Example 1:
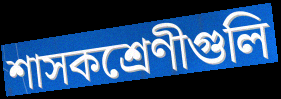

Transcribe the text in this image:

শাসকশ্রেণীগুলি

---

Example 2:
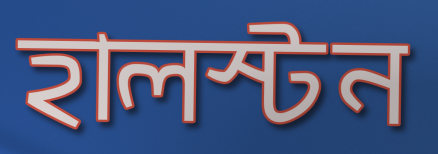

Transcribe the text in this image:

হালস্টন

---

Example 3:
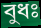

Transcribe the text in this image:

বুধঃ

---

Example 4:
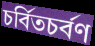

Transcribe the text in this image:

চর্বিতচর্বণ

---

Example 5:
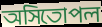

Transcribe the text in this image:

অসিতোপল